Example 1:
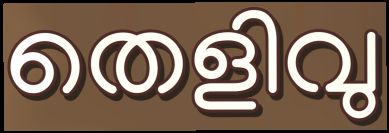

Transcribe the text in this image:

തെളിവു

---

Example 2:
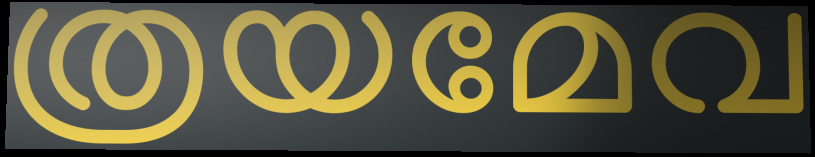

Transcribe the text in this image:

ത്രയമേവ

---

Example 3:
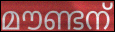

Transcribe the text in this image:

മൗണ്ടന്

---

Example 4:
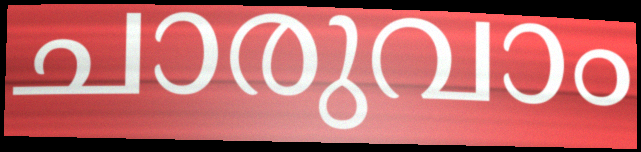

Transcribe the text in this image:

ചാരുവാം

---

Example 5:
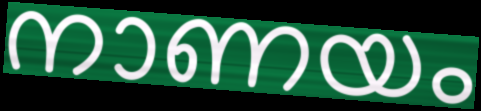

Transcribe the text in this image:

നാണയം